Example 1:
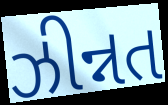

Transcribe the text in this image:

ઝીન્નત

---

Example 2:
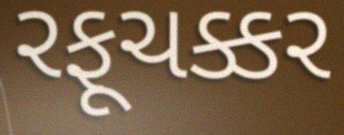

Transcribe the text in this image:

રફૂચક્કર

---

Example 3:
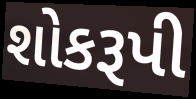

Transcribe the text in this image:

શોકરૂપી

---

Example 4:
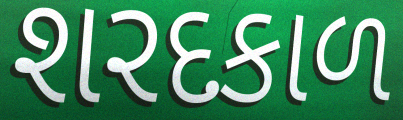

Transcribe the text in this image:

શરદકાળ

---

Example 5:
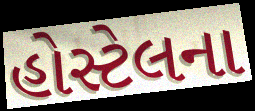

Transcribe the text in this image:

હોસ્ટેલના